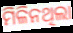
ମିଳିନଥିଲା